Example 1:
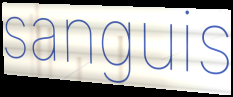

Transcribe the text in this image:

sanguis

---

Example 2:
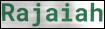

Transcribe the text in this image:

Rajaiah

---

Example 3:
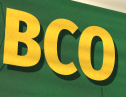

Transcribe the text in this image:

BCO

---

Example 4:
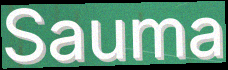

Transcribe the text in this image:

Sauma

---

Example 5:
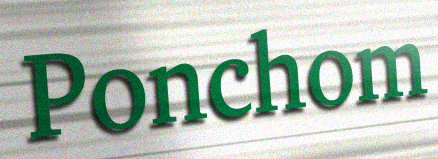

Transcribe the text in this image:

Ponchom